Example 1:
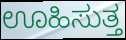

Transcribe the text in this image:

ಊಹಿಸುತ್ತ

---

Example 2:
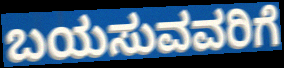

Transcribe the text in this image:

ಬಯಸುವವರಿಗೆ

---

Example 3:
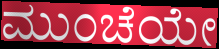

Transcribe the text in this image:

ಮುಂಚೆಯೇ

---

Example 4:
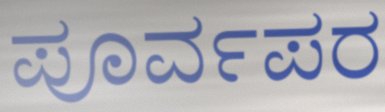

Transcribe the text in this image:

ಪೂರ್ವಪರ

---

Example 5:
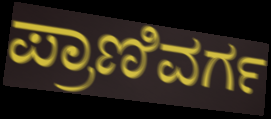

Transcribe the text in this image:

ಪ್ರಾಣಿವರ್ಗ